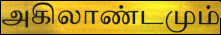
அகிலாண்டமும்